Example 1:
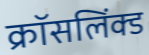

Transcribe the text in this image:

क्रॉसलिंक्ड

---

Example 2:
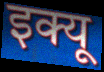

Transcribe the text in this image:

इक्यू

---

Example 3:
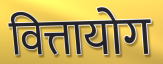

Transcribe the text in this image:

वित्तायोग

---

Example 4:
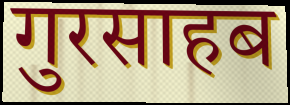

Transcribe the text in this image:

गुरसाहब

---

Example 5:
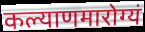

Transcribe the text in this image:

कल्याणमारोग्यं